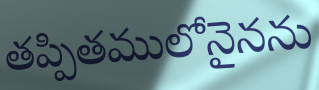
తప్పితములోనైనను